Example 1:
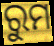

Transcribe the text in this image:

ରୁମ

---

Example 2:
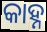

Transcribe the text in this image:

କାହ୍ନ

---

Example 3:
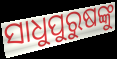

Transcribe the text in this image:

ସାଧୁପୁରୁଷଙ୍କୁ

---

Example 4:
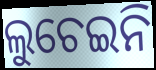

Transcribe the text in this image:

ଲୁଚେଇନି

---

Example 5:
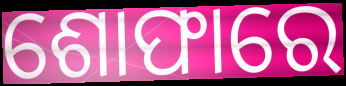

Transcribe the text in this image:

ଶୋଫାରେ